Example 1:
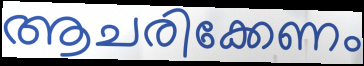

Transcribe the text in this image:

ആചരിക്കേണം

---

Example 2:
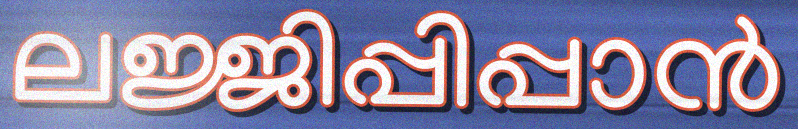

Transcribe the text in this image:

ലജ്ജിപ്പിപ്പാൻ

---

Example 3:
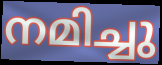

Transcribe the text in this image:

നമിച്ചു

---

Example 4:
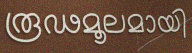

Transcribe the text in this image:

രൂഢമൂലമായി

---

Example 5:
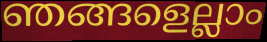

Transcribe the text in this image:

ഞങ്ങളെല്ലാം